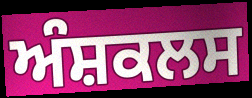
ਅੰਸ਼ਕਲਸ